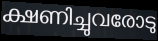
ക്ഷണിച്ചുവരോടു